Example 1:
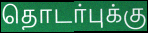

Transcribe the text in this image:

தொடர்புக்கு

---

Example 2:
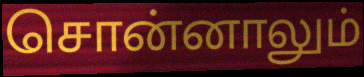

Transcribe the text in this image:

சொன்னாலும்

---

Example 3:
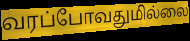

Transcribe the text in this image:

வரப்போவதுமில்லை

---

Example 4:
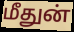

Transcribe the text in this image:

மீதுன்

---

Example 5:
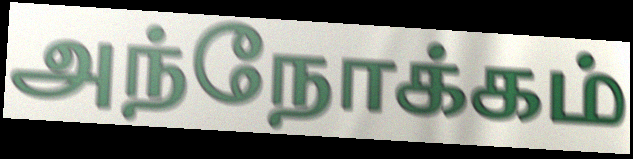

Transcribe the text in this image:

அந்நோக்கம்